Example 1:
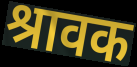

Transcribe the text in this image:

श्रावक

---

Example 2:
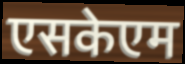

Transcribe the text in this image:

एसकेएम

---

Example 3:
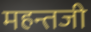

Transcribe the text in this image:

महन्तजी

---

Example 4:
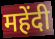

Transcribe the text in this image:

महेंदी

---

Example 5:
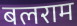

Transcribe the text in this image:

बलराम